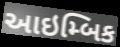
આઇમ્બિક